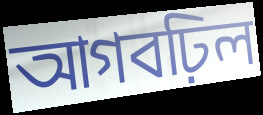
আগবঢ়িল